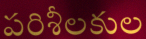
పరిశీలకుల